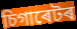
চিগাৰেটৰ